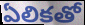
ఏలికతో